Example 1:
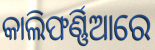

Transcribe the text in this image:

କାଲିଫର୍ଣ୍ଣିଆରେ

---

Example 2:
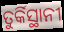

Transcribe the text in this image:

ତୁର୍କିସ୍ଥାନୀ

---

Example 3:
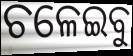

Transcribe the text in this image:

ଚଳେଇବୁ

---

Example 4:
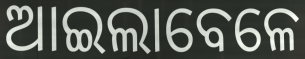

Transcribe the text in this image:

ଆଇଲାବେଳେ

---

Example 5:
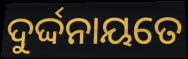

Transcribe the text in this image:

ଦୁର୍ଦ୍ଦନାୟତେ